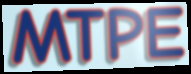
MTPE